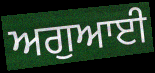
ਅਗੁਆਈ